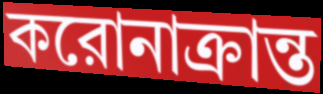
করোনাক্রান্ত